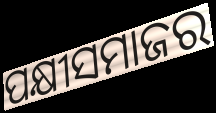
ପକ୍ଷୀସମାଜର